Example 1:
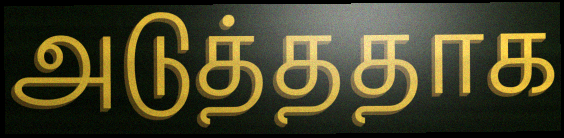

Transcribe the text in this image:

அடுத்ததாக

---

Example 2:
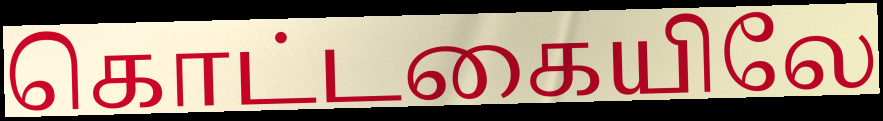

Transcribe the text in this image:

கொட்டகையிலே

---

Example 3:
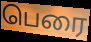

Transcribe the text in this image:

பெரை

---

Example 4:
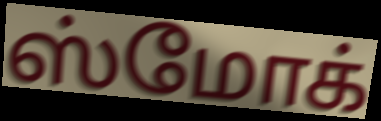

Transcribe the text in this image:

ஸ்மோக்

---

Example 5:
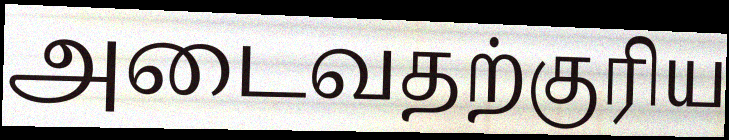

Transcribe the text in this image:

அடைவதற்குரிய